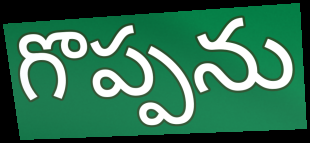
గొప్పను